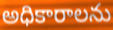
అధికారాలను